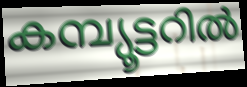
കമ്പ്യൂട്ടറിൽ